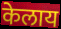
केलाय